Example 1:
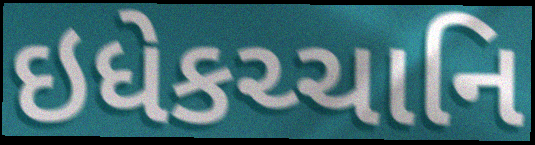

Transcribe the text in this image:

ઇધેકચ્ચાનિ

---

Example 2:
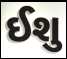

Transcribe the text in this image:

ઈશુ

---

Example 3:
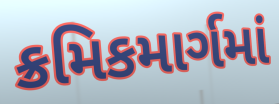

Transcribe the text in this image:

ક્રમિકમાર્ગમાં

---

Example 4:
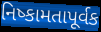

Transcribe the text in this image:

નિષ્કામતાપૂર્વક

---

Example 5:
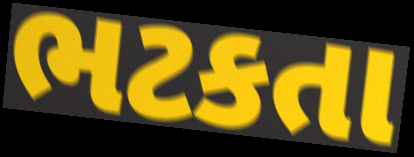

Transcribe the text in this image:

ભટકતા